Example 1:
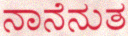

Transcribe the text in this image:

ನಾನೆನುತ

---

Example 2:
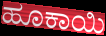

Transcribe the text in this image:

ಹೂಕಾಯಿ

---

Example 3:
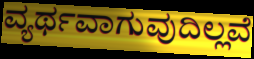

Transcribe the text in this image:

ವ್ಯರ್ಥವಾಗುವುದಿಲ್ಲವೆ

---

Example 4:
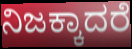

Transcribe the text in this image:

ನಿಜಕ್ಕಾದರೆ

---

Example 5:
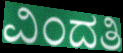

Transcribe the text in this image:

ವಿಂದತಿ